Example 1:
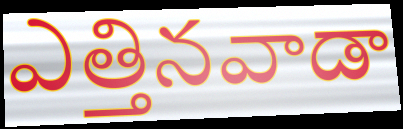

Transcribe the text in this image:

ఎత్తినవాడా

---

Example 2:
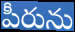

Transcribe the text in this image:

పీరును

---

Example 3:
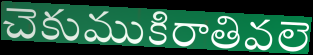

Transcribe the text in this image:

చెకుముకిరాతివలె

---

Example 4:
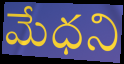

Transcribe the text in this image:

మేధని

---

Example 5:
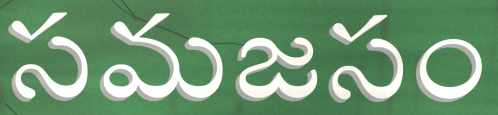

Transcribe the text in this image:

సమజసం